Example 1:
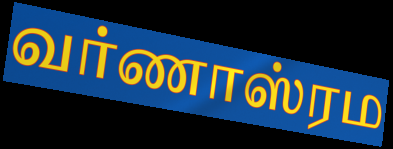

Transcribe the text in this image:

வர்ணாஸ்ரம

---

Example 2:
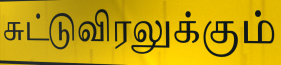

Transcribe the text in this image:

சுட்டுவிரலுக்கும்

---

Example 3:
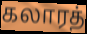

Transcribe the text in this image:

கலாரத்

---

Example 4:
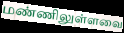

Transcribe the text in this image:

மண்ணிலுள்ளவை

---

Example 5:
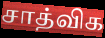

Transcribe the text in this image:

சாத்விக